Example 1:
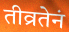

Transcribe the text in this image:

तीव्रतेनं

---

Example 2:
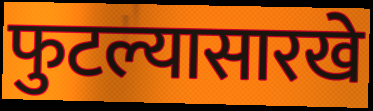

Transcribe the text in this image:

फुटल्यासारखे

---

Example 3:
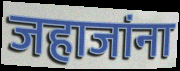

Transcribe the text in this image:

जहाजांना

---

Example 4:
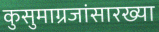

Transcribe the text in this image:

कुसुमाग्रजांसारख्या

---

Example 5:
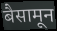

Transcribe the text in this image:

बैसामून